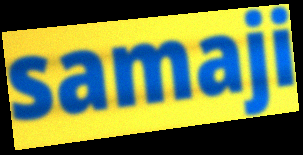
samaji